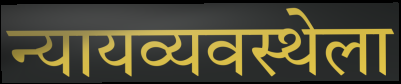
न्यायव्यवस्थेला